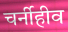
चर्नीहीव